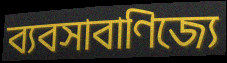
ব্যবসাবাণিজ্যে